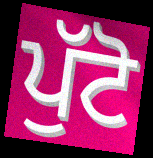
ਪੁੱਟੋ